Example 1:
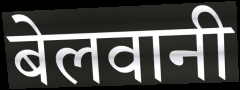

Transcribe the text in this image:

बेलवानी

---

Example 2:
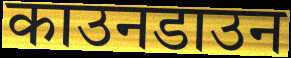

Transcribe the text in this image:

काउनडाउन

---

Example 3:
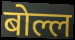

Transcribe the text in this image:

बोल्ल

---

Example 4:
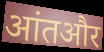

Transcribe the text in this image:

आंतऔर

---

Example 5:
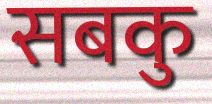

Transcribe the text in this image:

सबकु